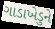
ગાડાખેડુને